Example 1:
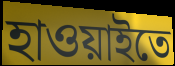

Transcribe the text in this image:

হাওয়াইতে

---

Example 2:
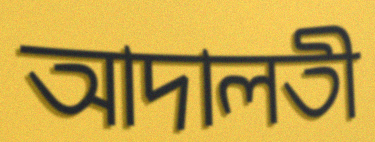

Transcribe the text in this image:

আদালতী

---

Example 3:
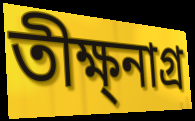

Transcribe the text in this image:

তীক্ষ্নাগ্র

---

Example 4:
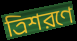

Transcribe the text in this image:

ত্রিশরণে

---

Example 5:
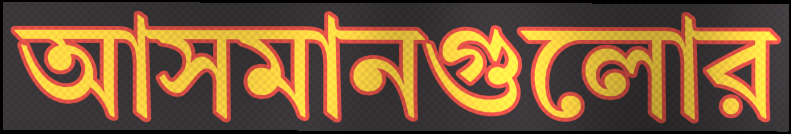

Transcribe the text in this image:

আসমানগুলোর